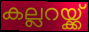
കല്ലറയ്ക്ക്